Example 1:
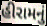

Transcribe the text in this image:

હીરામનું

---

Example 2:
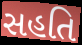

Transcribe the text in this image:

સહતિ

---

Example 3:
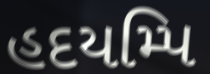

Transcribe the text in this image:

હદયમ્પિ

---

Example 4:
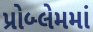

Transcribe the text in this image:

પ્રોબ્લેમમાં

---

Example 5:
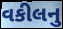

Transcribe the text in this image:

વકીલનુ